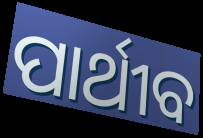
ପାର୍ଥୀବ